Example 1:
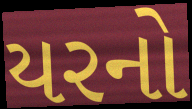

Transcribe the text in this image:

યરનો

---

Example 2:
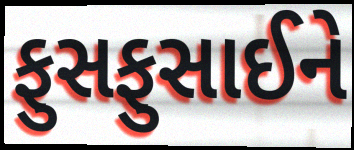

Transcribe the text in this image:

ફુસફુસાઈને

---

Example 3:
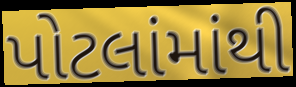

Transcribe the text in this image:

પોટલાંમાંથી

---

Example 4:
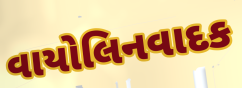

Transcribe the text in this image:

વાયોલિનવાદક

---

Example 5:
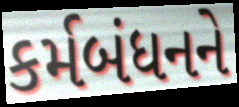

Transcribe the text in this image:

કર્મબંધનને